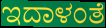
ಇದಾಳಂತೆ